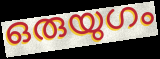
ഒരുയുഗം